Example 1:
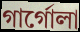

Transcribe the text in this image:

গাৰ্গোলা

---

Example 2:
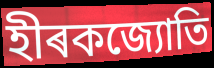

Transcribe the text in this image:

হীৰকজ্যোতি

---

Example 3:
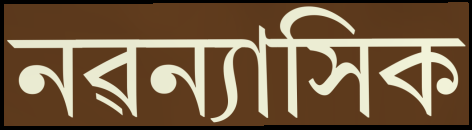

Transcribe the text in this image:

নৱন্যাসিক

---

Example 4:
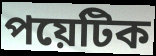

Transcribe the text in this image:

পয়েটিক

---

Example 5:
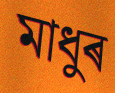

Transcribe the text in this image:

মাধুৰ